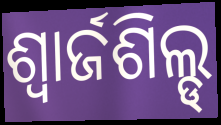
ଶ୍ୱାର୍ଜଶିଲ୍ଡ୍